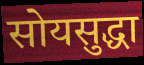
सोयसुद्धा